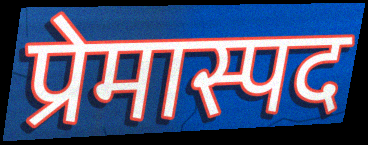
प्रेमास्पद